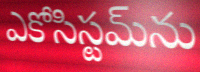
ఎకోసిస్టమ్‌ను